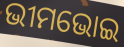
ଭୀମଭୋଇ